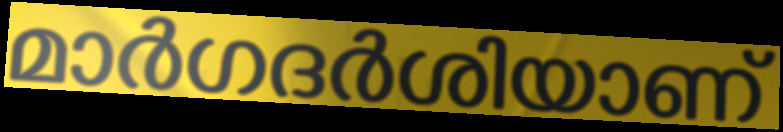
മാർഗദർശിയാണ്